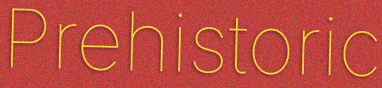
Prehistoric